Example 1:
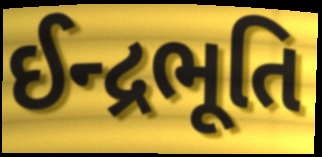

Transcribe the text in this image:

ઈન્દ્રભૂતિ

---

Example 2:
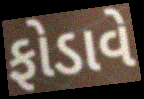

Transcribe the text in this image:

ફોડાવે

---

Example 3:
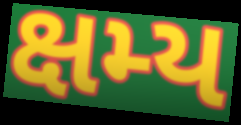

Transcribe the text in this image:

ક્ષમ્ય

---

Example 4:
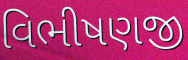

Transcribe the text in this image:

વિભીષણજી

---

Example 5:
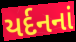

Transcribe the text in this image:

યર્દનનાં